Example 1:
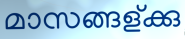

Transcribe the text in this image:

മാസങ്ങള്ക്കു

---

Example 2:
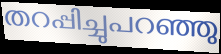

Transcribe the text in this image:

തറപ്പിച്ചുപറഞ്ഞു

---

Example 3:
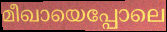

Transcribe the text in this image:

മീഖായെപ്പോലെ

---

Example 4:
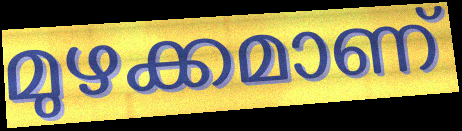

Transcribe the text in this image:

മുഴക്കമാണ്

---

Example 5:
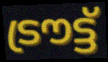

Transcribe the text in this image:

ട്രൗട്ട്